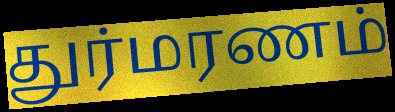
துர்மரணம்